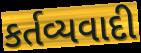
કર્તવ્યવાદી